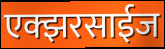
एक्झरसाईज